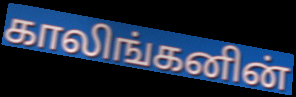
காலிங்கனின்